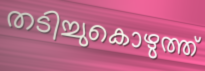
തടിച്ചുകൊഴുത്ത്